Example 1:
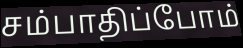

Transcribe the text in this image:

சம்பாதிப்போம்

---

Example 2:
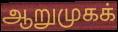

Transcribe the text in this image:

ஆறுமுகக்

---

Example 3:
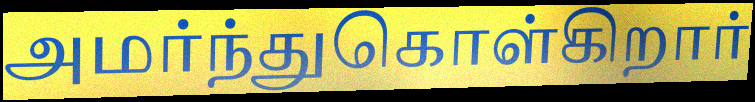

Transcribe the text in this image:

அமர்ந்துகொள்கிறார்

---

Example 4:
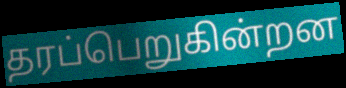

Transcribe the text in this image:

தரப்பெறுகின்றன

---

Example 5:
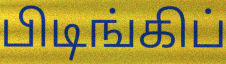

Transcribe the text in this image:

பிடிங்கிப்